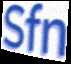
Sfn